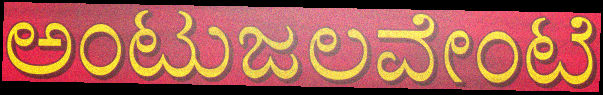
ಅಂಟುಜಲವೇಂಟೆ